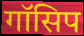
गॉसिप